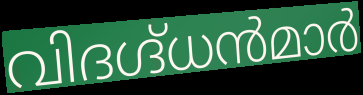
വിദഗ്ദ്ധൻമാർ